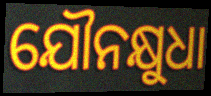
ଯୌନକ୍ଷୁଧା